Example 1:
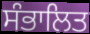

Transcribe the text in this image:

ਸੰਭਾਲਿਤ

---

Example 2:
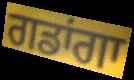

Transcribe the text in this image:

ਗਡਾਂਗਾ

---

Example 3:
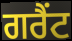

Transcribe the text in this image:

ਗਰੈਂਟ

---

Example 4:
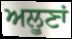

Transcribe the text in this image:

ਅਲੂਣਾਂ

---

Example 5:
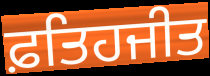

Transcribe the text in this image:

ਫ਼ਤਿਹਜੀਤ